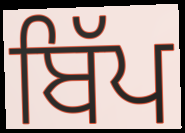
ਬਿੱਪ